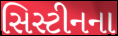
સિસ્ટીનના